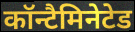
कॉन्टैमिनेटेड